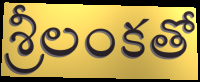
శ్రీలంకతో